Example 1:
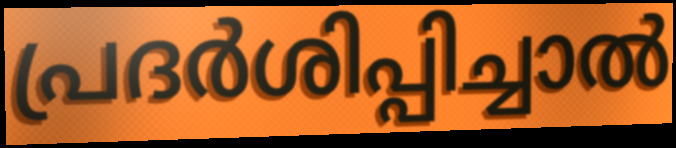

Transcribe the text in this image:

പ്രദർശിപ്പിച്ചാൽ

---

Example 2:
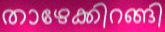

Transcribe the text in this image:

താഴേക്കിറങ്ങി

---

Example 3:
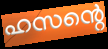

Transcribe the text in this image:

ഹസന്റെ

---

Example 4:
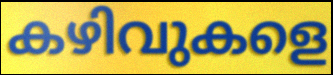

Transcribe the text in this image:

കഴിവുകളെ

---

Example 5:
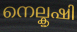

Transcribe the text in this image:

നെല്കൃഷി